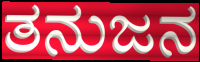
ತನುಜನ